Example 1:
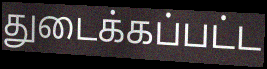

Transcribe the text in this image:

துடைக்கப்பட்ட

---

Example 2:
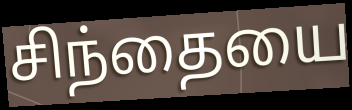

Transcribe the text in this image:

சிந்தையை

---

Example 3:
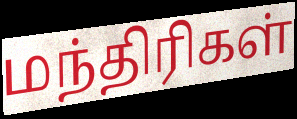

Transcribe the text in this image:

மந்திரிகள்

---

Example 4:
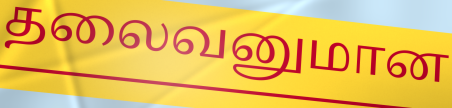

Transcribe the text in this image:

தலைவனுமான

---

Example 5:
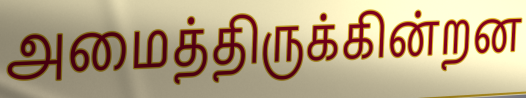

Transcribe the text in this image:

அமைத்திருக்கின்றன